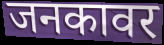
जनकावर